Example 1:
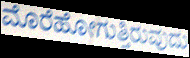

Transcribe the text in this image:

ಮೊರೆಹೋಗುತ್ತಿರುವುದು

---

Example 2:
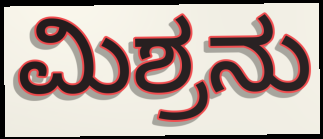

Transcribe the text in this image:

ಮಿಶ್ರನು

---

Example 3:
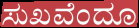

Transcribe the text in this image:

ಸುಖವೆಂದೂ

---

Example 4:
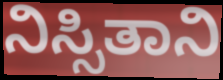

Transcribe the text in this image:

ನಿಸ್ಸಿತಾನಿ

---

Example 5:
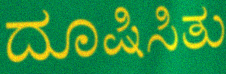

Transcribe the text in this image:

ದೂಷಿಸಿತು